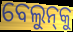
ବେଲୁନ୍‌କୁ